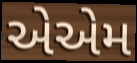
એએમ